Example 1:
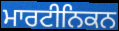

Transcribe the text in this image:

ਮਾਰਟੀਨਿਕਨ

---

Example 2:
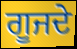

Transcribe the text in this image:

ਗੂਜਦੇ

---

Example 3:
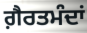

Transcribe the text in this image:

ਗ਼ੈਰਤਮੰਦਾਂ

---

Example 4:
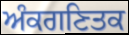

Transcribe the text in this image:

ਅੰਕਗਣਿਤਕ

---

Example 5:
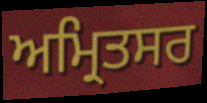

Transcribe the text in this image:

ਅਮ੍ਰਿਤਸਰ